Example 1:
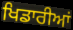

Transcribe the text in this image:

ਖਿਡਾਰੀਆਂ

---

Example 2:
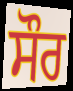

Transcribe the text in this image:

ਸੌਰ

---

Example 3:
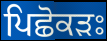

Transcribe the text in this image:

ਪਿਛੋਕੜਃ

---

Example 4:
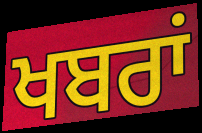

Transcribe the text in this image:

ਖਬਰਾਂ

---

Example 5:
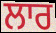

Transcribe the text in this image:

ਲਾਰ